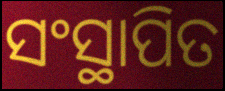
ସଂସ୍ଥାପିତ